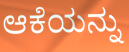
ಆಕೆಯನ್ನು